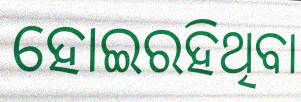
ହୋଇରହିଥିବା